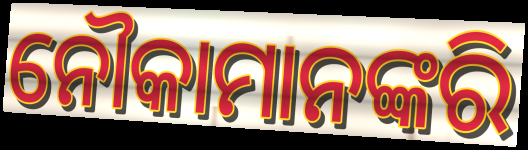
ନୌକାମାନଙ୍କରି